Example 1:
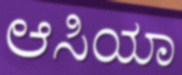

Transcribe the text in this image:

ಆಸಿಯಾ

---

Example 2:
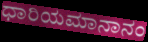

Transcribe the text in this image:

ಧಾರಿಯಮಾನಾನಂ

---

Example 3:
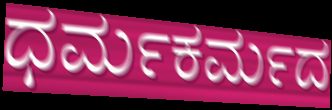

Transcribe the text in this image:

ಧರ್ಮಕರ್ಮದ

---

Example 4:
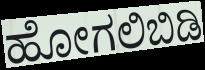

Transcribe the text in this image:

ಹೋಗಲಿಬಿಡಿ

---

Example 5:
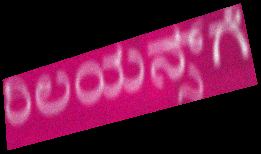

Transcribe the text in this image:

ರಿಲಯನ್ಸ್‌ಗೆ